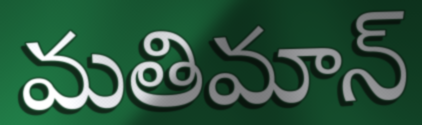
మతిమాన్